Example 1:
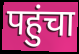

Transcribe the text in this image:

पहुंचा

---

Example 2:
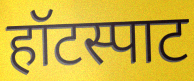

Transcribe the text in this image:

हॉटस्पाट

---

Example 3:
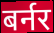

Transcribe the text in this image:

बर्नर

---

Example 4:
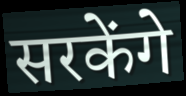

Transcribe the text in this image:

सरकेंगे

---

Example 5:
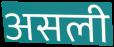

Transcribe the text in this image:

असली